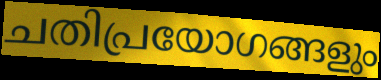
ചതിപ്രയോഗങ്ങളും